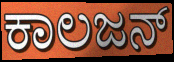
ಕಾಲಜನ್